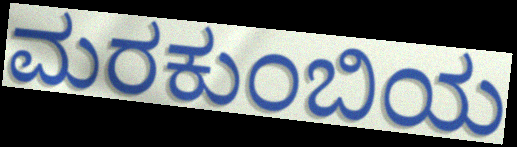
ಮರಕುಂಬಿಯ